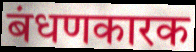
बंधणकारक